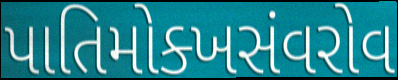
પાતિમોક્ખસંવરોવ